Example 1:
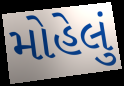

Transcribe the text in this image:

મોહેલું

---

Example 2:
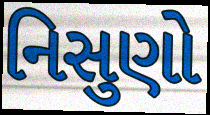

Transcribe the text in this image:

નિસુણો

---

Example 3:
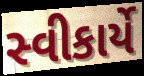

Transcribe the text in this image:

સ્વીકાર્યે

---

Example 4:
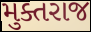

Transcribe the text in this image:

મુક્તરાજ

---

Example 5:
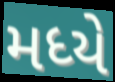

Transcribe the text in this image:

મધ્યે